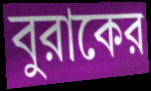
বুরাকের